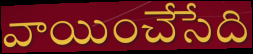
వాయించేసేది